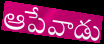
ఆపేవాడు